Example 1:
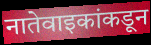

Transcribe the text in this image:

नातेवाइकांकडून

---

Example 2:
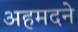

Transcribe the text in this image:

अहमदने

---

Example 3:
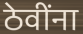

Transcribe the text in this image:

ठेवींना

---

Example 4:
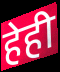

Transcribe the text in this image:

हेही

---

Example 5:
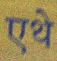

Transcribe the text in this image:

एथे